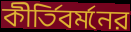
কীর্তিবর্মনের